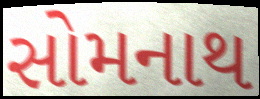
સોમનાથ